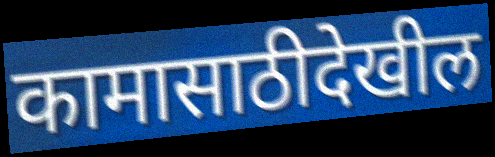
कामासाठीदेखील